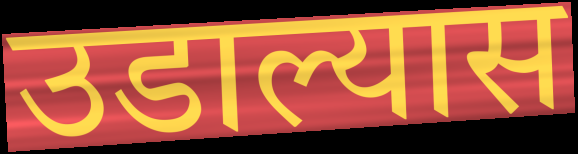
उडाल्यास